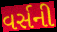
વર્સની